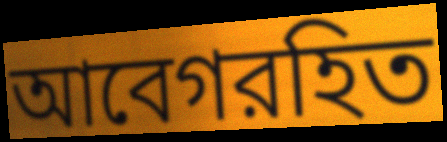
আবেগরহিত